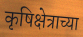
कृषिक्षेत्राच्या